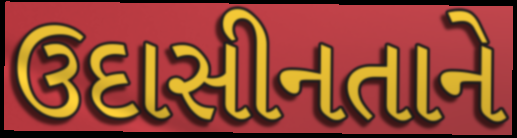
ઉદાસીનતાને